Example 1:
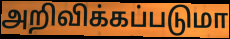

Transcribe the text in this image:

அறிவிக்கப்படுமா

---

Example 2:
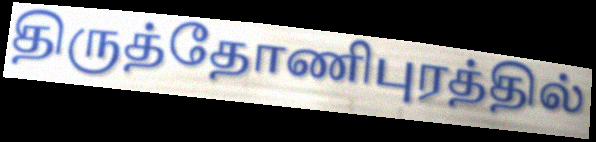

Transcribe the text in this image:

திருத்தோணிபுரத்தில்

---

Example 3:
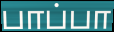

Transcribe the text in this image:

பாப்பா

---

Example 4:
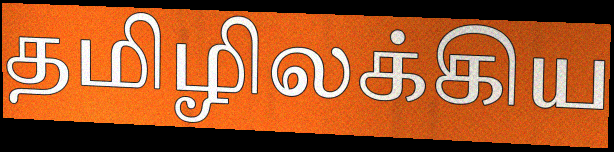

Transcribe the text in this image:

தமிழிலக்கிய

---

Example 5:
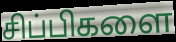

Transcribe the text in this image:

சிப்பிகளை